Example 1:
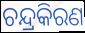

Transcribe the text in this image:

ଚନ୍ଦ୍ରକିରଣ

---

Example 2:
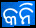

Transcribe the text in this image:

କନି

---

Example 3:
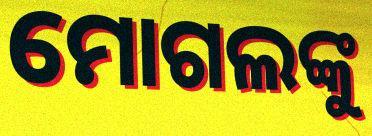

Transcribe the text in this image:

ମୋଗଲଙ୍କୁ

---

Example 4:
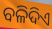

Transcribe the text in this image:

ବଳିଦିଏ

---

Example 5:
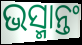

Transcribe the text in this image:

ଭସ୍ମାନ୍ତଂ